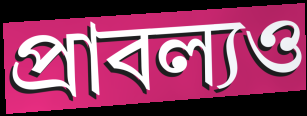
প্রাবল্যও